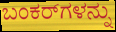
ಬಂಕರ್‌ಗಳನ್ನು